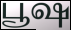
பூஷ